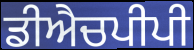
ਡੀਐਚਪੀਪੀ